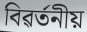
বিৱৰ্তনীয়